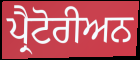
ਪ੍ਰੈਟੋਰੀਅਨ